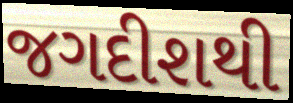
જગદીશથી